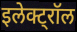
इलेक्ट्रॉल